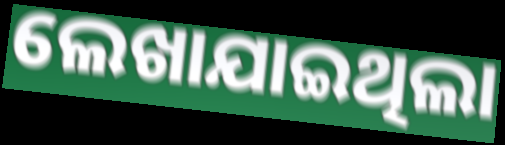
ଲେଖାଯାଇଥିଲା